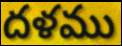
దళము